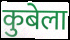
कुबेला